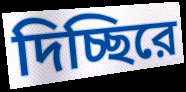
দিচ্ছিরে